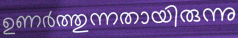
ഉണർത്തുന്നതായിരുന്നു